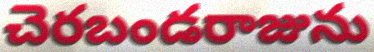
చెరబండరాజును